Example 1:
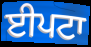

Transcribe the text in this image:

ਈਪਟਾ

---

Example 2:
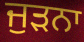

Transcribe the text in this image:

ਜੁੜਨਾ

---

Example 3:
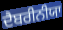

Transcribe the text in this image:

ਦੈਬਰੀਨੀਯਾ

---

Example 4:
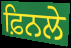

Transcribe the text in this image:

ਫ਼ਿਨਲੇ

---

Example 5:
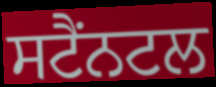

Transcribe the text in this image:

ਸਟੈਂਨਟਲ